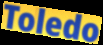
Toledo